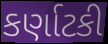
કર્ણાટકી